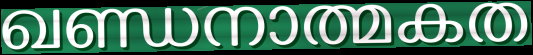
ഖണ്ഡനാത്മകത